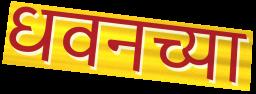
धवनच्या